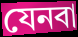
যেনবা